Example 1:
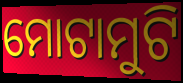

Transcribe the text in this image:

ମୋଟାମୁଟି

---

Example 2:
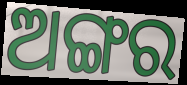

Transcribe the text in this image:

ଅଙ୍ଗର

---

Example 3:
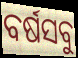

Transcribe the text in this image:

ବର୍ଷସବୁ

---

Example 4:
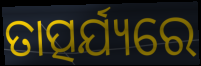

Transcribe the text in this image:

ତାତ୍ପର୍ଯ୍ୟରେ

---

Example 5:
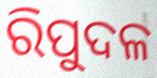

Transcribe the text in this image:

ରିପୁଦଳ